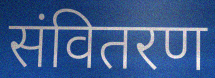
संवितरण